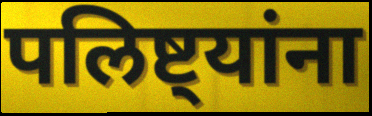
पलिष्ट्यांना